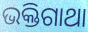
ଭକ୍ତିଗାଥା